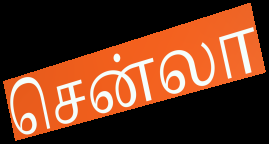
சென்லா